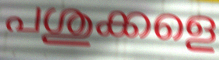
പശുക്കളെ